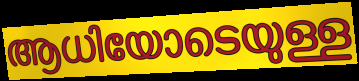
ആധിയോടെയുള്ള